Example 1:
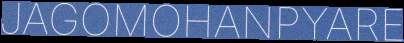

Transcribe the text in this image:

JAGOMOHANPYARE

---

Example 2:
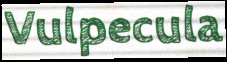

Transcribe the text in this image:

Vulpecula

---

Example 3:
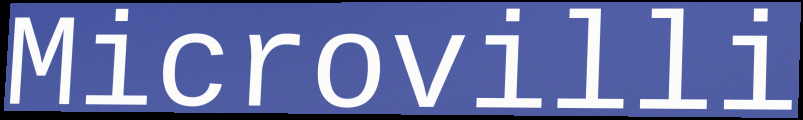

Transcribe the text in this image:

Microvilli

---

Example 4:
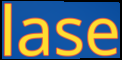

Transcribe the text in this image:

lase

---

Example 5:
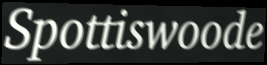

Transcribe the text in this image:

Spottiswoode